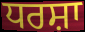
ਧਰਸ਼ਾ